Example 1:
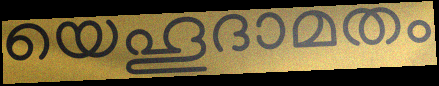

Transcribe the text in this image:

യെഹൂദാമതം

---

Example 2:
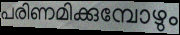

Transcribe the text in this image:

പരിണമിക്കുമ്പോഴും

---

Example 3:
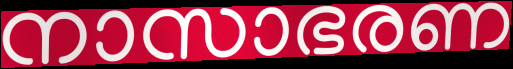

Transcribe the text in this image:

നാസാഭരണ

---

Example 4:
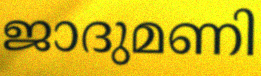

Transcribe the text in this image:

ജാദുമണി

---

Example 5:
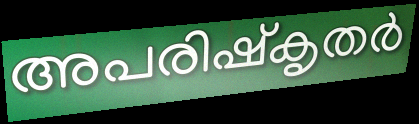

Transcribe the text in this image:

അപരിഷ്കൃതർ